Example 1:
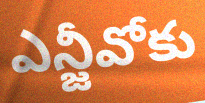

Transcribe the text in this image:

ఎన్జీవోకు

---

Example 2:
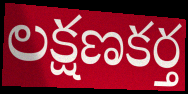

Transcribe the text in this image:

లక్షణకర్త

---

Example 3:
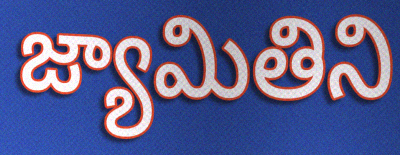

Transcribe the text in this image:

జ్యామితిని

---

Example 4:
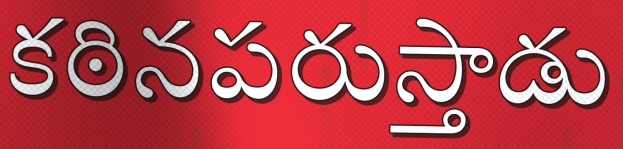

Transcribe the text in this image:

కఠినపరుస్తాడు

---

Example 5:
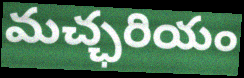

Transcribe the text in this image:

మచ్ఛరియం